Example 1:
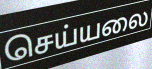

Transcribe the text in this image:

செய்யலை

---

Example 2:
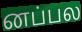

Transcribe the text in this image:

னப்பல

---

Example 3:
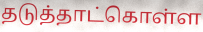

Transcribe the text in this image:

தடுத்தாட்கொள்ள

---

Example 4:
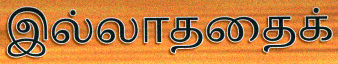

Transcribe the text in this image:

இல்லாததைக்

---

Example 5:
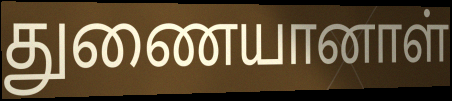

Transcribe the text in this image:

துணையானாள்